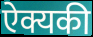
ऐक्यकी